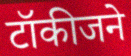
टॉकीजने